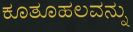
ಕೂತೂಹಲವನ್ನು